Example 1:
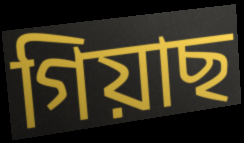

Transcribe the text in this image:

গিয়াছ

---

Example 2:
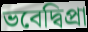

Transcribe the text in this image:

ভবেদ্বিপ্রা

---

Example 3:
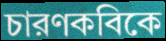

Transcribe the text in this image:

চারণকবিকে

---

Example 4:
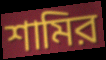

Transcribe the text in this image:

শামির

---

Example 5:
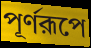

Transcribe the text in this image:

পূর্ণরূপে